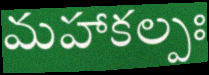
మహాకల్పః